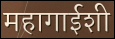
महागाईशी